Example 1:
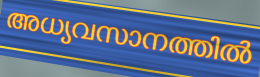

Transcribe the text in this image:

അധ്യവസാനത്തിൽ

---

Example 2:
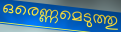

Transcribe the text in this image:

ഒരെണ്ണമെടുത്തു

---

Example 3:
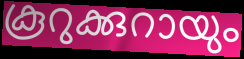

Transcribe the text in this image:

കൂറുക്കുറായും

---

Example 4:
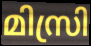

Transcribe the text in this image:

മിസ്രി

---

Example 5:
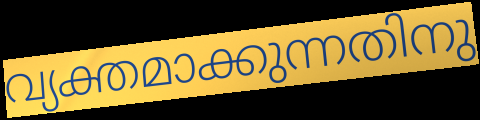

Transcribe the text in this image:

വ്യക്തമാക്കുന്നതിനു